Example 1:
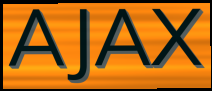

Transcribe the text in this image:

AJAX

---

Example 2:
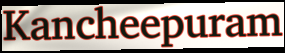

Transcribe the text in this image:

Kancheepuram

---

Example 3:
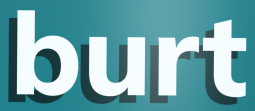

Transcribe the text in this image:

burt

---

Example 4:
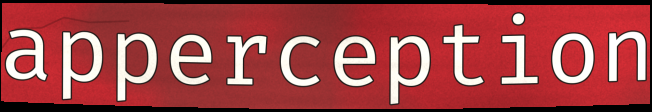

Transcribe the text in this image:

apperception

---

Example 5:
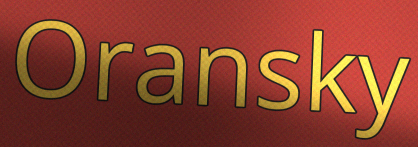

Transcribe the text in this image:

Oransky